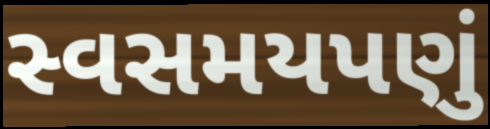
સ્વસમયપણું